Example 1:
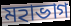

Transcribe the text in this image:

মহাভাগ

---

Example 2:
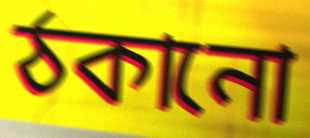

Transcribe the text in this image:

ঠকানো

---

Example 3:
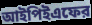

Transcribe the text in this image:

আইপিইএফের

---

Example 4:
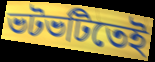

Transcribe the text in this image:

ভটভটিতেই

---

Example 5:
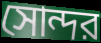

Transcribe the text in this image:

সোন্দর